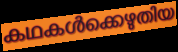
കഥകൾക്കെഴുതിയ